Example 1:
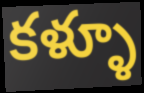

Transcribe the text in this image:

కళ్ళూ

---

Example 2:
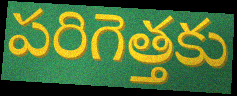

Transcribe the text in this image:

పరిగెత్తకు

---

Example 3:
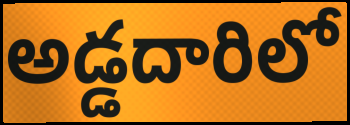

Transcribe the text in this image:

అడ్డదారిలో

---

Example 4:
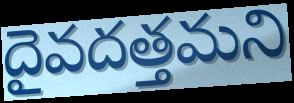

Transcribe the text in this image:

దైవదత్తమని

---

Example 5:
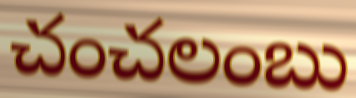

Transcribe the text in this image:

చంచలంబు